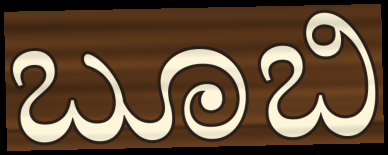
ಬೂಬಿ